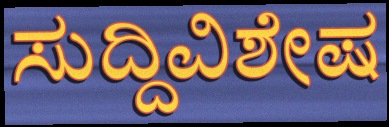
ಸುದ್ದಿವಿಶೇಷ